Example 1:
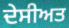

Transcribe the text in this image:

ਦੇਸੀਅਤ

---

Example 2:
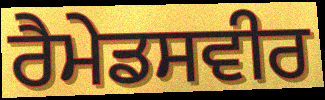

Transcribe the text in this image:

ਰੈਮੇਡਸਵੀਰ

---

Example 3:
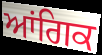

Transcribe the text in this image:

ਆਂਗਿਕ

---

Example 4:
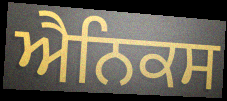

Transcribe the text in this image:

ਐਨਿਕਸ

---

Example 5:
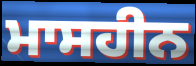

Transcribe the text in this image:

ਮਾਸਹੀਨ